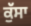
ਕੁੱਸਾ